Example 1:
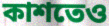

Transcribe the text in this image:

কাশতেও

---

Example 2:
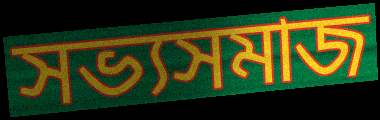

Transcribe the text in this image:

সভ্যসমাজ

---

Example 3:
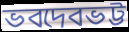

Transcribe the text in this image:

ভবদেবভট্ট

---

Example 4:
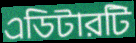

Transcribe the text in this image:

এডিটারটি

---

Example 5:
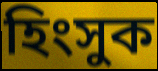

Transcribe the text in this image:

হিংসুক